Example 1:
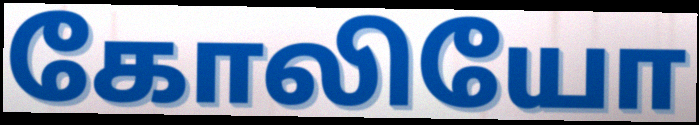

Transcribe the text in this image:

கோலியோ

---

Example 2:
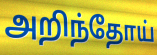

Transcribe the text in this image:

அறிந்தோய்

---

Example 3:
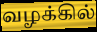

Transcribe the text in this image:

வழக்கில்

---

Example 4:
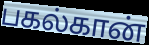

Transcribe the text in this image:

பகல்கான்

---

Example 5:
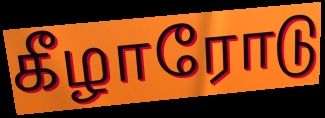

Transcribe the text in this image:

கீழாரோடு